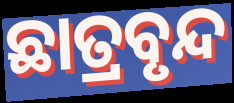
ଛାତ୍ରବୃନ୍ଦ